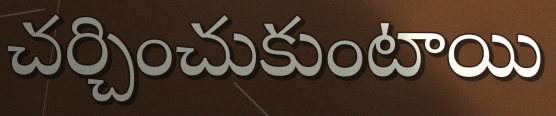
చర్చించుకుంటాయి